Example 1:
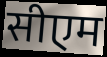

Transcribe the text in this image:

सीएम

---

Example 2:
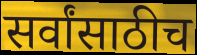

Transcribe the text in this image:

सर्वांसाठीच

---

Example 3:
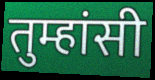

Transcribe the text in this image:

तुम्हांसी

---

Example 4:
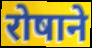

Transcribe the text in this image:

रोषाने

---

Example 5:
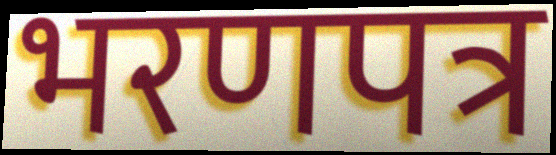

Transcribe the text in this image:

भरणपत्र